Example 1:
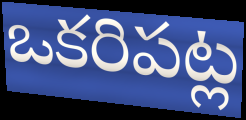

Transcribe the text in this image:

ఒకరిపట్ల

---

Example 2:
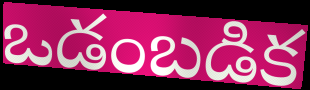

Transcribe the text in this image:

ఒడంబడిక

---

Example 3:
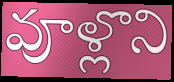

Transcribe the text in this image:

వూళ్లొని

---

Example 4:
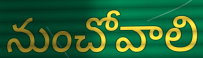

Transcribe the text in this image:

నుంచోవాలి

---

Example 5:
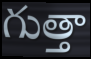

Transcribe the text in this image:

గుత్తా